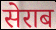
सेराब